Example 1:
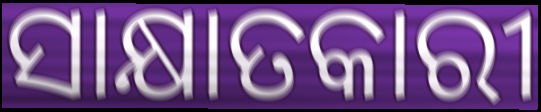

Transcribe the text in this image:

ସାକ୍ଷାତକାରୀ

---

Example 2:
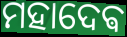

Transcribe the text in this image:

ମହାଦେଵ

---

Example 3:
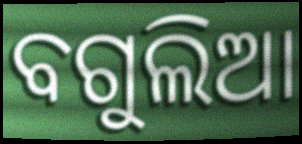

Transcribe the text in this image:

ବଗୁଲିଆ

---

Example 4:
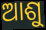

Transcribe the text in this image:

ଆଶୁ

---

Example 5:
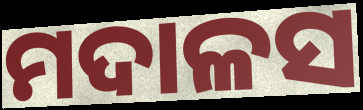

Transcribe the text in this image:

ମଦାଳସ